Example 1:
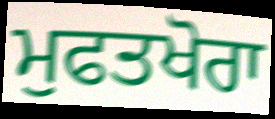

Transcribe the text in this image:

ਮੁਫਤਖੋਰਾ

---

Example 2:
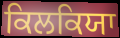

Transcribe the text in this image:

ਕਿਲਕਿਯਾ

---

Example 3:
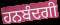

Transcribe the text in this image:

ਹਨਬੰਦਗੀ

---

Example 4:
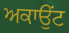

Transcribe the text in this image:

ਅਕਾਉਂਟ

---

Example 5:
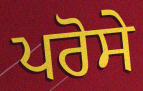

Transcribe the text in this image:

ਪਰੋਸੇ